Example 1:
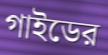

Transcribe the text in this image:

গাইডের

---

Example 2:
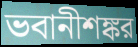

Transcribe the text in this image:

ভবানীশঙ্কর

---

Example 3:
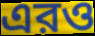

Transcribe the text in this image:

এরও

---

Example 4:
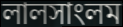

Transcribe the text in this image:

লালসাংলম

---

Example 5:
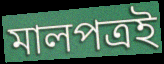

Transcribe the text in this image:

মালপত্রই